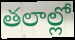
తలాల్లో